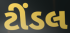
ટીંડલ